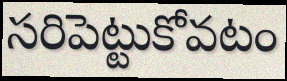
సరిపెట్టుకోవటం